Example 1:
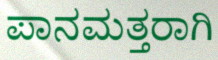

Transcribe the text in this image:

ಪಾನಮತ್ತರಾಗಿ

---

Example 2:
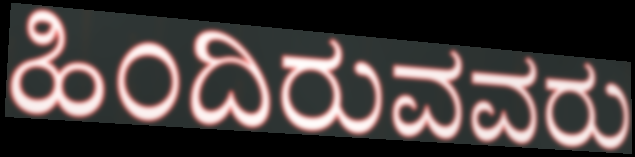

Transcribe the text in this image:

ಹಿಂದಿರುವವರು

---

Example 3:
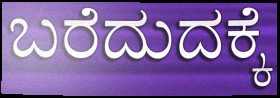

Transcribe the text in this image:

ಬರೆದುದಕ್ಕೆ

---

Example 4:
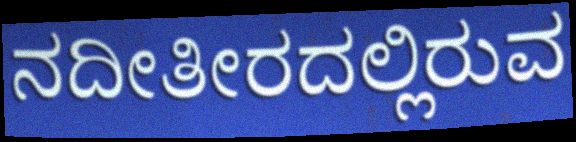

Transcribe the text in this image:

ನದೀತೀರದಲ್ಲಿರುವ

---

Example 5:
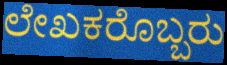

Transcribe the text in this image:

ಲೇಖಕರೊಬ್ಬರು